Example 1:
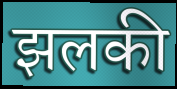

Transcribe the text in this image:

झलकी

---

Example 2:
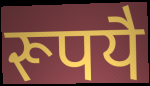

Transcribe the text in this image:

रूपयै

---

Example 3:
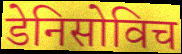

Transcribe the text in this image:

डेनिसोविच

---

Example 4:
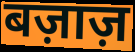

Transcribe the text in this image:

बज़ाज़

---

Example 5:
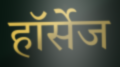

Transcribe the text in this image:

हॉर्सेज